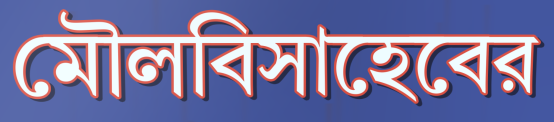
মৌলবিসাহেবের